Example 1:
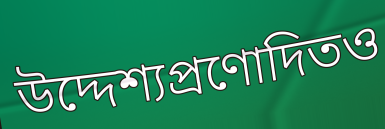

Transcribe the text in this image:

উদ্দেশ্যপ্রণোদিতও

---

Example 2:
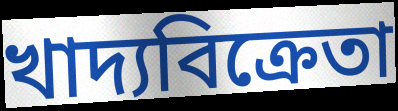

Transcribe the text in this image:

খাদ্যবিক্রেতা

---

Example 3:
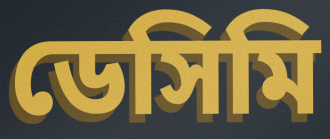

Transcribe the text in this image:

ডেসিমি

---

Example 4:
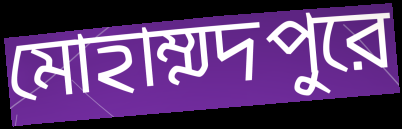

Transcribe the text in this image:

মোহাম্মদপুরে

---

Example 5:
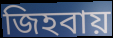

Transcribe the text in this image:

জিহবায়